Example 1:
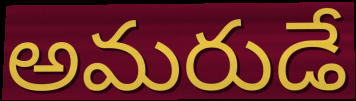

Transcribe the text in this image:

అమరుడే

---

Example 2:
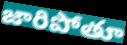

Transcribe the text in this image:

జారిపోతూ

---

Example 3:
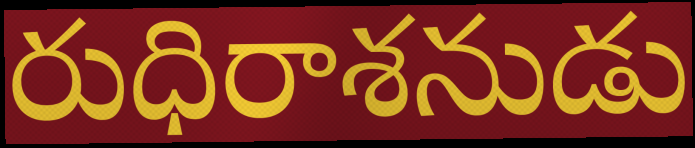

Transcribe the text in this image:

రుధిరాశనుడు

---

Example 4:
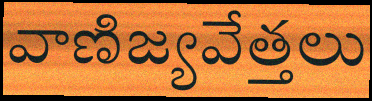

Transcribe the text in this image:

వాణిజ్యవేత్తలు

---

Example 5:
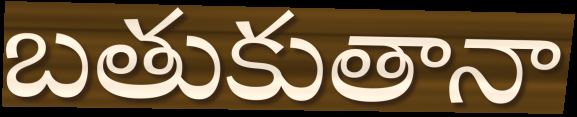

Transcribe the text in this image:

బతుకుతానా